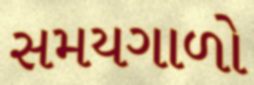
સમયગાળો